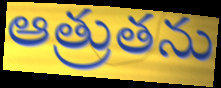
ఆత్రుతను